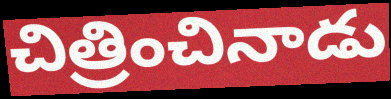
చిత్రించినాడు